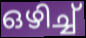
ഒഴിച്ച്